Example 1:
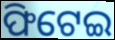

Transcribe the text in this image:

ଫିଟେଇ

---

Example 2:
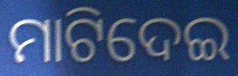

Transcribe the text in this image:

ମାଟିଦେଇ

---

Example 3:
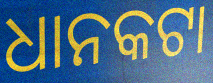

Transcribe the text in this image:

ଧାନକଟା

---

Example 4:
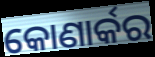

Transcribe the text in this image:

କୋଣାର୍କର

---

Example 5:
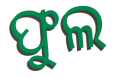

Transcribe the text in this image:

ଫୁଲ